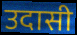
उदासी